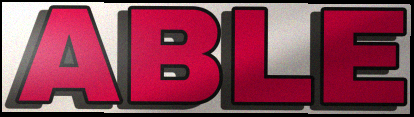
ABLE